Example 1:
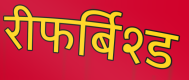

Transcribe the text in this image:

रीफर्बिश्ड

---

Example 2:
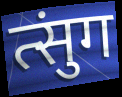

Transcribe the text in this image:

त्सुंग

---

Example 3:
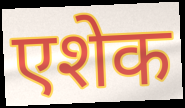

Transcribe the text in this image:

एशेक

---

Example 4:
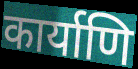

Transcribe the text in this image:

कार्याणि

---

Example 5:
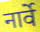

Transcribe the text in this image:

नार्वे